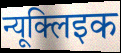
न्यूक्‍लिइक